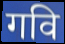
गवि